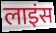
लाइंस